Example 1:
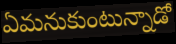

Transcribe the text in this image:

ఏమనుకుంటున్నాడో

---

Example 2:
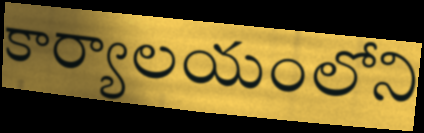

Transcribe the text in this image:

కార్యాలయంలోని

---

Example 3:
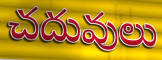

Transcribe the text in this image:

చదువులు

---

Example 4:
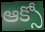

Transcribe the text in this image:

ఆక్సో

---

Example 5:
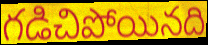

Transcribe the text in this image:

గడిచిపోయినది